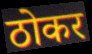
ठोकर